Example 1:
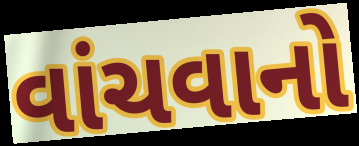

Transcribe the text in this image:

વાંચવાનો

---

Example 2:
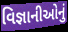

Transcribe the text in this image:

વિજ્ઞાનીઓનું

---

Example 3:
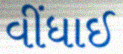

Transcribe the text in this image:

વીંધાઈ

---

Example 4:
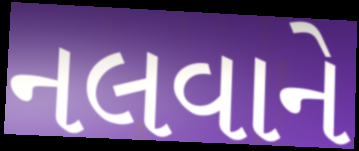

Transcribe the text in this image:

નલવાને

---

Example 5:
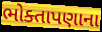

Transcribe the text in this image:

ભોક્તાપણાના